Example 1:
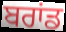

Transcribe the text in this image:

ਬਰਾਂਡ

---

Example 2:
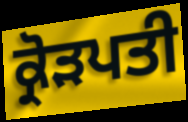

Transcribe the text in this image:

ਕ੍ਰੋੜਪਤੀ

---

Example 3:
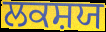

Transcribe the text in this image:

ਲਕਸ਼ਯ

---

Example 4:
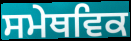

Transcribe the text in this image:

ਸਮੇਥਵਿਕ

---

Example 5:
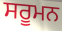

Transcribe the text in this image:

ਸਰੂਮਨ